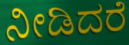
ನೀಡಿದರೆ